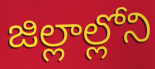
జిల్లాల్లోని